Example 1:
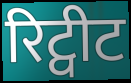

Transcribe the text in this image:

रिट्वीट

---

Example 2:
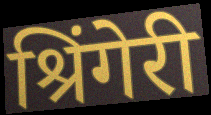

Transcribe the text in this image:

श्रिंगेरी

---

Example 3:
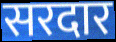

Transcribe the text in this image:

सरदार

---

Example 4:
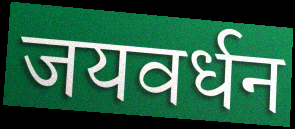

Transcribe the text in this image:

जयवर्धन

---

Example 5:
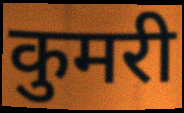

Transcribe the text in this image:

कुमरी